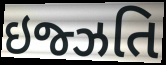
ઇજ્ઝતિ